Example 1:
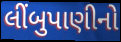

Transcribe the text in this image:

લીંબુપાણીનો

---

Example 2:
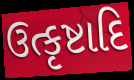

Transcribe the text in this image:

ઉત્કૃષ્ટાદિ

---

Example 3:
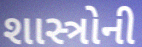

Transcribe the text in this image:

શાસ્ત્રોની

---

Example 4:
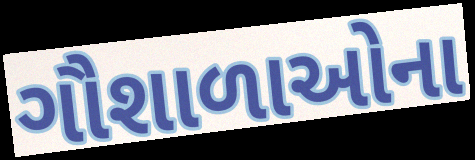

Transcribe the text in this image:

ગૌશાળાઓના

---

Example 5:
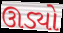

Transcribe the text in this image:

ઊડ્યો